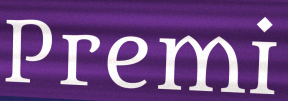
Premi